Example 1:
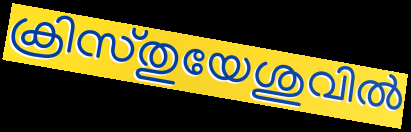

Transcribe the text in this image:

ക്രിസ്തുയേശുവിൽ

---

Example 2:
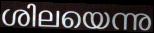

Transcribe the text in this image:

ശിലയെന്നു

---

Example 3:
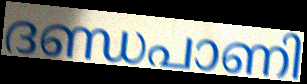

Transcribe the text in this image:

ദണ്ഡപാണി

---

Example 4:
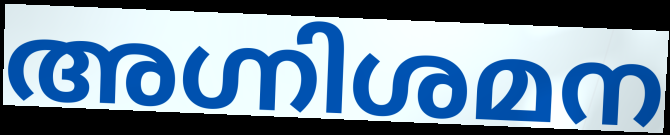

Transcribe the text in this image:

അഗ്നിശമന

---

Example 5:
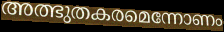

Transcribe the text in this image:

അത്ഭുതകരമെന്നോണം